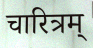
चारित्रम्